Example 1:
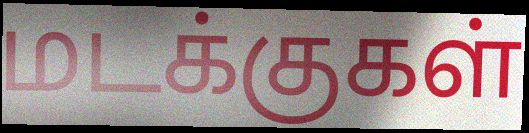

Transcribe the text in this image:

மடக்குகள்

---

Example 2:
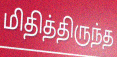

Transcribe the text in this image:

மிதித்திருந்த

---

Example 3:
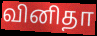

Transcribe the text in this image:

வினிதா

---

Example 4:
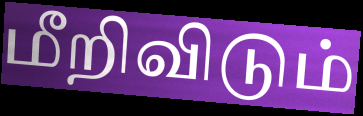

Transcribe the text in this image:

மீறிவிடும்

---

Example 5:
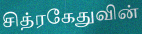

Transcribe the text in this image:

சித்ரகேதுவின்